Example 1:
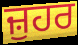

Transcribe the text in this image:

ਜ਼ੁਹਰ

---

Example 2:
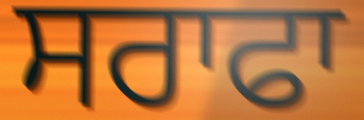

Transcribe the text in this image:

ਸਰਾਫਾ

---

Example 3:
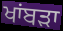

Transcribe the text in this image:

ਖਾਂਬੜਾ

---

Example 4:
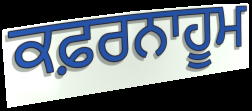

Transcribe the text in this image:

ਕਫ਼ਰਨਾਹੂਮ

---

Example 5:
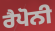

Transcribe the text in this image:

ਰੈਪੋਨੀ